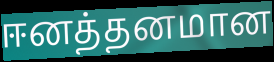
ஈனத்தனமான